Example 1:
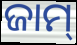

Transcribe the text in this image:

ଜାମ୍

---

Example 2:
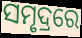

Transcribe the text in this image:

ସମୃଦ୍ରରେ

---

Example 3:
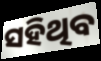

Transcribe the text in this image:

ସହିଥିବ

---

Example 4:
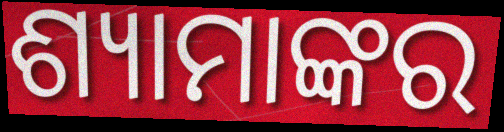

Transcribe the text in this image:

ଶ୍ୟାମାଙ୍କର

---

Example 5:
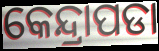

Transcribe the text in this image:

କେନ୍ଦ୍ରାପଡା